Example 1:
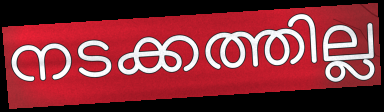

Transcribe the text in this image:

നടക്കത്തില്ല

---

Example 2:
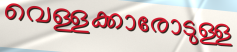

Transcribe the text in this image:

വെള്ളക്കാരോടുള്ള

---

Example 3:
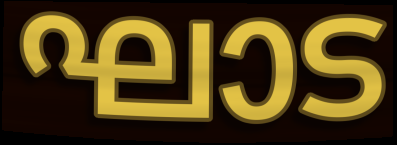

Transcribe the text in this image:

ഘാട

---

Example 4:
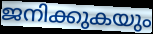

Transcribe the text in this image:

ജനിക്കുകയും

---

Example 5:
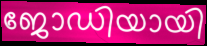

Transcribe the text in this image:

ജോഡിയായി